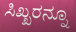
ಸಿಖ್ಖರನ್ನೂ